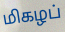
மிகழப்